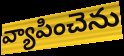
వ్యాపించెను